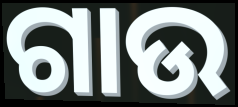
ଗାଉ